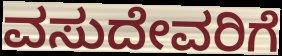
ವಸುದೇವರಿಗೆ